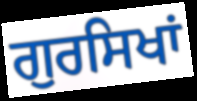
ਗੁਰਸਿਖਾਂ